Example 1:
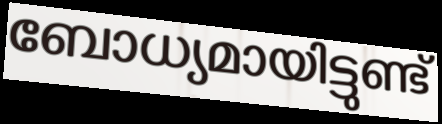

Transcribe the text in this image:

ബോധ്യമായിട്ടുണ്ട്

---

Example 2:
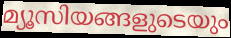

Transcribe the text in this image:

മ്യൂസിയങ്ങളുടെയും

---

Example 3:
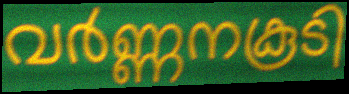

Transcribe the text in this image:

വർണ്ണനകൂടി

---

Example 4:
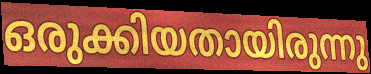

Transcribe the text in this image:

ഒരുക്കിയതായിരുന്നു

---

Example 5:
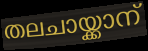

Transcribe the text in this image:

തലചായ്ക്കാന്